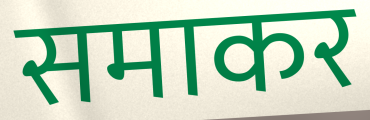
समाकर